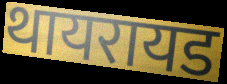
थायरायड